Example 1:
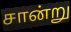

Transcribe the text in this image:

சான்று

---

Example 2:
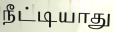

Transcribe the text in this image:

நீட்டியாது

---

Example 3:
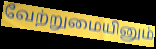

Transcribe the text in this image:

வேற்றுமையினும்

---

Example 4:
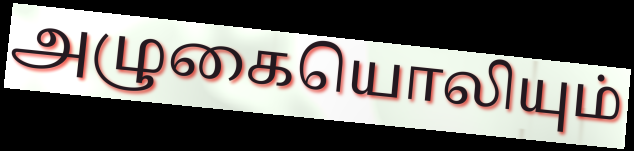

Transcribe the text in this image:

அழுகையொலியும்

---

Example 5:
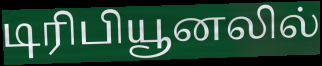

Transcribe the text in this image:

டிரிபியூனலில்